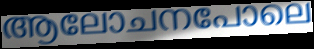
ആലോചനപോലെ